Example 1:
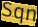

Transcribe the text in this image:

Sqn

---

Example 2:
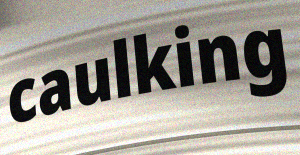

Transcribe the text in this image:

caulking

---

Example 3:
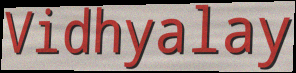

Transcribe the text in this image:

Vidhyalay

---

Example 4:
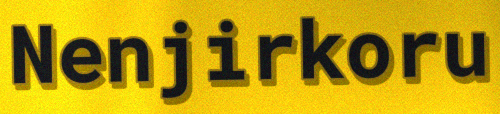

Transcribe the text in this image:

Nenjirkoru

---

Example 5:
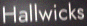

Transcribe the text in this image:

Hallwicks